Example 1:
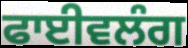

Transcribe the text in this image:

ਫਾਈਵਲੰਗ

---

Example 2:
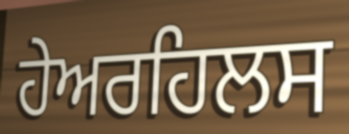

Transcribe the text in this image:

ਹੇਅਰਹਿਲਸ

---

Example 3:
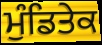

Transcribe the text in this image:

ਮੁੰਡਿਤੇਕ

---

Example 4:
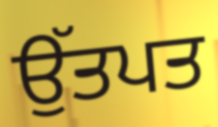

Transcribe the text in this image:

ਉੱਤਪਤ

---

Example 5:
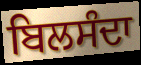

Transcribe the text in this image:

ਬਿਲਸੰਦਾ